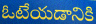
ఓటేయడానికి